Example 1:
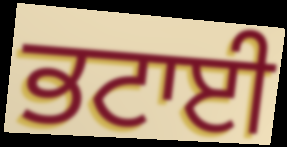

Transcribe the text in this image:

ਭਟਾਈ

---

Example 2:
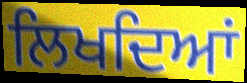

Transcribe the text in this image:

ਲਿਖਦਿਆਂ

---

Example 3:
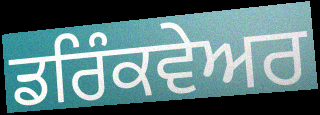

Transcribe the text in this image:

ਡਰਿੰਕਵੇਅਰ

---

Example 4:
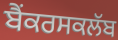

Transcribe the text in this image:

ਬੈਂਕਰਸਕਲੱਬ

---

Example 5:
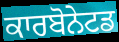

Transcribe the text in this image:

ਕਾਰਬੋਨੇਟਡ